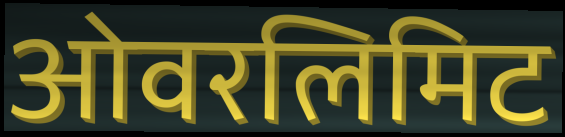
ओवरलिमिट